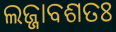
ଲଜ୍ଜାବଶତଃ